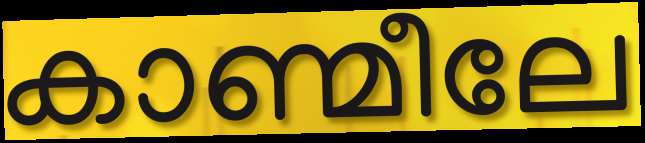
കാണ്മീലേ